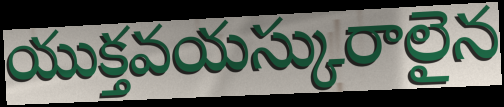
యుక్తవయస్కురాలైన